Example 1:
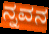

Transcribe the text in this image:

ನ್ನವನ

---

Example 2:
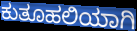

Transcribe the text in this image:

ಕುತೂಹಲಿಯಾಗಿ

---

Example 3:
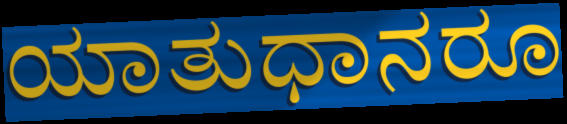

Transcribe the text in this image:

ಯಾತುಧಾನರೂ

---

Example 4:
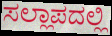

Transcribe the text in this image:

ಸಲ್ಲಾಪದಲ್ಲಿ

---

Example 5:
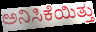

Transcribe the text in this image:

ಅನಿಸಿಕೆಯಿತ್ತು